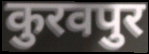
कुरवपुर